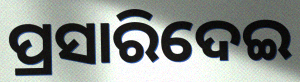
ପ୍ରସାରିଦେଇ